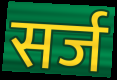
सर्ज